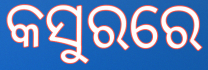
କସୁରରେ